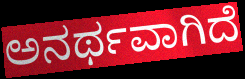
ಅನರ್ಥವಾಗಿದೆ